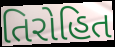
તિરોહિત